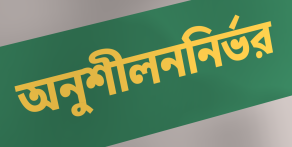
অনুশীলননির্ভর